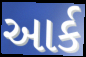
આર્ક